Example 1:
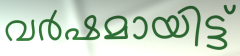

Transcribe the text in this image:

വർഷമായിട്ട്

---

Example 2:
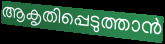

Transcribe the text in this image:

ആകൃതിപ്പെടുത്താൻ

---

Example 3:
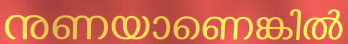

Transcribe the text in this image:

നുണയാണെങ്കിൽ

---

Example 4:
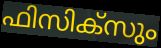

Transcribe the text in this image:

ഫിസിക്സും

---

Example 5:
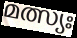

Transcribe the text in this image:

മത്സ്യഃ